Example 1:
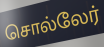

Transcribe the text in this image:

சொல்லேர்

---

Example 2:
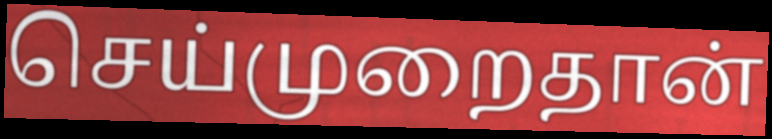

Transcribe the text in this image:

செய்முறைதான்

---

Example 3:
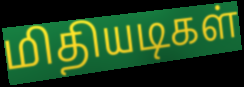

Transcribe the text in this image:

மிதியடிகள்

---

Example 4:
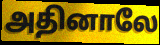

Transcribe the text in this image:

அதினாலே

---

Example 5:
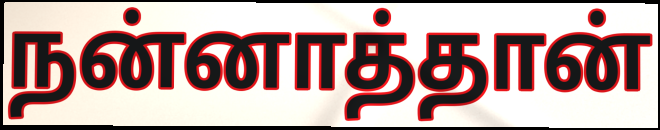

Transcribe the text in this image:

நன்னாத்தான்